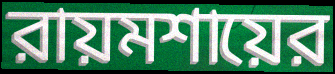
রায়মশায়ের